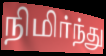
நிமிர்ந்து